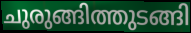
ചുരുങ്ങിത്തുടങ്ങി